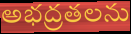
అభద్రతలను